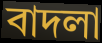
বাদলা